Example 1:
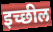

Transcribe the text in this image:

इच्छील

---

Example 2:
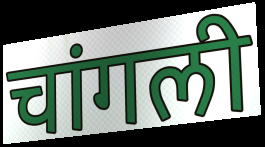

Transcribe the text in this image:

चांगली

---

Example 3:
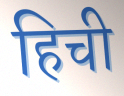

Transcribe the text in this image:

हिची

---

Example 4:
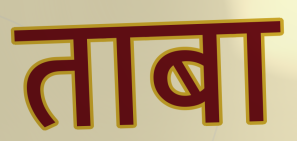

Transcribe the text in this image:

ताबा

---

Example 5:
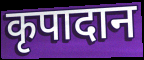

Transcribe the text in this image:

कृपादान